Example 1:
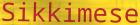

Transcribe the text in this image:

Sikkimese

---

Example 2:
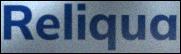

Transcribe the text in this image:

Reliqua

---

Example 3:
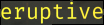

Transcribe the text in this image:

eruptive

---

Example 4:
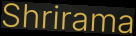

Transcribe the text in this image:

Shrirama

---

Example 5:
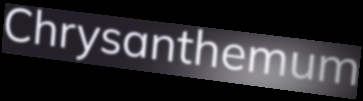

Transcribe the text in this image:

Chrysanthemum